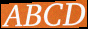
ABCD